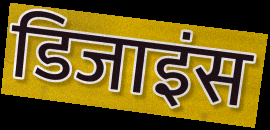
डिजाइंस